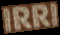
IRRI